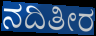
ನದಿತೀರ